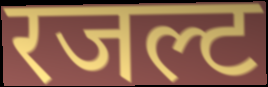
रजल्ट